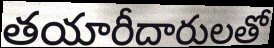
తయారీదారులతో